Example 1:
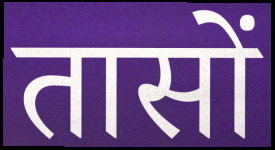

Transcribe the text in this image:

तासों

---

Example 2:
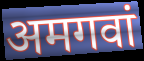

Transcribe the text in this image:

अमगवां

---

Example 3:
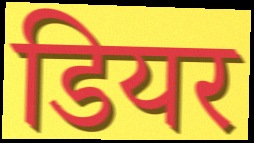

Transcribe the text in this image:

डियर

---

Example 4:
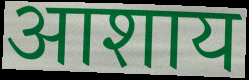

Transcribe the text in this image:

आशाय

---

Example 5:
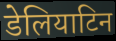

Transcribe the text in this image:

डेलियाटिन